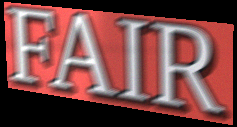
FAIR